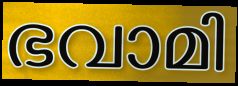
ഭവാമി